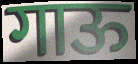
गाऊ